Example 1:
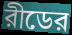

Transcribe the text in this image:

রীডের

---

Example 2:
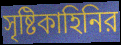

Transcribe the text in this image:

সৃষ্টিকাহিনির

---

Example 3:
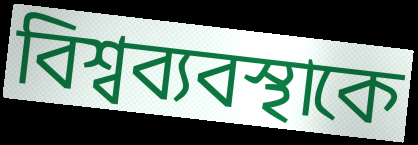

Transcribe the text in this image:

বিশ্বব্যবস্থাকে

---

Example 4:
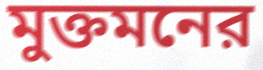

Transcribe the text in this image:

মুক্তমনের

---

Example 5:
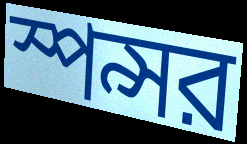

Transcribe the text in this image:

স্পন্সর